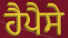
ਹੈਪੈਸੇ